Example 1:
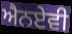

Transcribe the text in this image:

ਐਨਏਵੀ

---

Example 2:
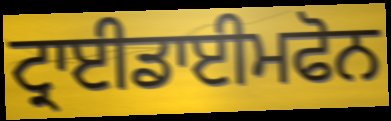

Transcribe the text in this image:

ਟ੍ਰਾਈਡਾਈਮਫੋਨ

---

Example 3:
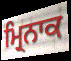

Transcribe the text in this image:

ਮ੍ਰਿਨਾਕ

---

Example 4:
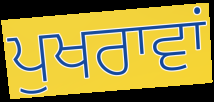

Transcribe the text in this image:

ਪੁਖਰਾਵਾਂ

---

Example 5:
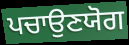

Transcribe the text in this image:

ਪਚਾਉਣਯੋਗ